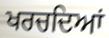
ਖਰਚਦਿਆਂ